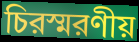
চিরস্মরণীয়